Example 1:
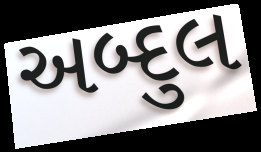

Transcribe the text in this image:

અબ્દુલ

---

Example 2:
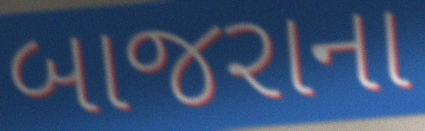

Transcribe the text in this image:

બાજરાના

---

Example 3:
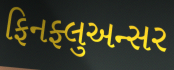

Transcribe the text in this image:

ફિનફ્લુઅન્સર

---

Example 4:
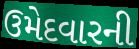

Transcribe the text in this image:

ઉમેદવારની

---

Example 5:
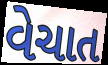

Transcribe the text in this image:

વેચાત